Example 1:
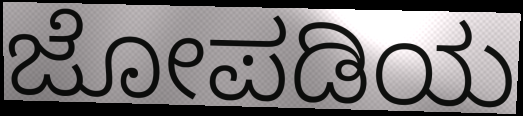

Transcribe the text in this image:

ಜೋಪಡಿಯ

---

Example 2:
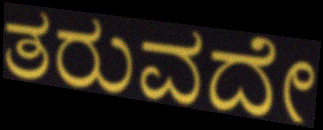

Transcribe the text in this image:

ತರುವದೇ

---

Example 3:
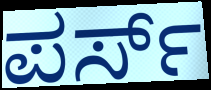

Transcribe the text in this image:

ಪರ್ಸ್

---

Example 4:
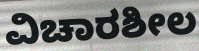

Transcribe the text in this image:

ವಿಚಾರಶೀಲ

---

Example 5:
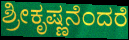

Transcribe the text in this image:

ಶ್ರೀಕೃಷ್ಣನೆಂದರೆ